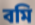
বমি